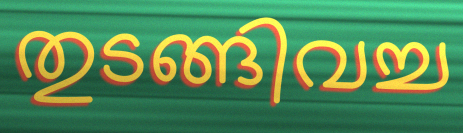
തുടങ്ങിവച്ച